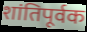
शांतिपूर्वक